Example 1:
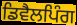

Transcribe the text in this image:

ਡਿਵੈਲਪਿੰਗ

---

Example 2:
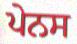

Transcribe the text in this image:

ਪੇਨਸ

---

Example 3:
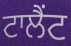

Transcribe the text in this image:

ਟਾਲੈਂਟ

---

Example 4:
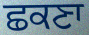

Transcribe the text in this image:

ਛਕਣਾ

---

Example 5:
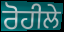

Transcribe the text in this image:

ਰੋਹੀਲੇ